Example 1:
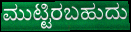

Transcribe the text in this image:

ಮುಟ್ಟಿರಬಹುದು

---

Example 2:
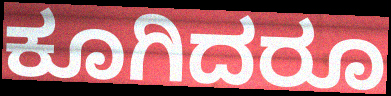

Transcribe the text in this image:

ಕೂಗಿದರೂ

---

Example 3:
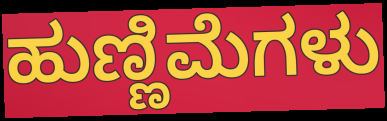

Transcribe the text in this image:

ಹುಣ್ಣಿಮೆಗಳು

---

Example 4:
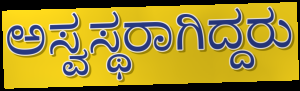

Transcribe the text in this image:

ಅಸ್ವಸ್ಥರಾಗಿದ್ದರು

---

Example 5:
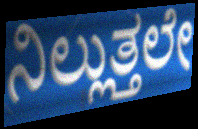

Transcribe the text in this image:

ನಿಲ್ಲುತ್ತಲೇ